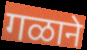
गळाने